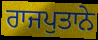
ਰਾਜਪੁਤਾਨੇ